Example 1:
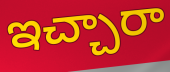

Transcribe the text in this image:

ఇచ్చారా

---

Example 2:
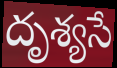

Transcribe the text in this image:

దృశ్యసే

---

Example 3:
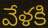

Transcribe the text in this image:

వేళకి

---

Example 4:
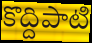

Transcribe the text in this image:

కొద్దిపాటి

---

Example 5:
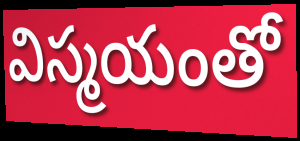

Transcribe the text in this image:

విస్మయంతో